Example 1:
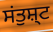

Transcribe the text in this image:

ਸਂਤੁਸ਼੍ਟ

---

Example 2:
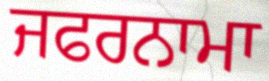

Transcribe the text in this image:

ਜਫਰਨਾਮਾ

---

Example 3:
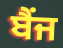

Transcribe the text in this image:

ਬੈਂਜ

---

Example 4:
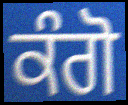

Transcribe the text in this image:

ਕੰਗੋ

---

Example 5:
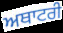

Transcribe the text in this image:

ਅਥਾਟਰੀ